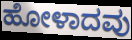
ಹೋಳಾದವು